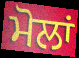
ਮੋਲਾਂ